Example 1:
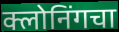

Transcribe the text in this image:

क्लोनिंगचा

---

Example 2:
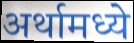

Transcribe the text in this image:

अर्थामध्ये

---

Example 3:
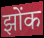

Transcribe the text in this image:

झोंक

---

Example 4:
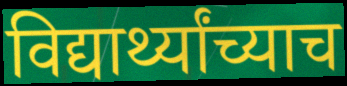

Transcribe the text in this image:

विद्यार्थ्यांच्याच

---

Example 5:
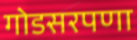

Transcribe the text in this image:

गोडसरपणा